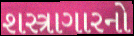
શસ્ત્રાગારનો